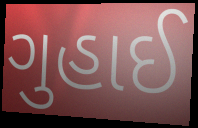
ગુહાઈ